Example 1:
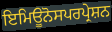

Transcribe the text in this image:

ਇਮਿਊਨੋਸਪਰਪ੍ਰੇਸ਼ਨ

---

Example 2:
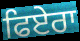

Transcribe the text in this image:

ਫਿਏਰਾ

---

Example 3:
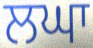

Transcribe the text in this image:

ਲਘਾ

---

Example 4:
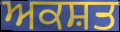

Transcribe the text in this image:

ਅਕਸ਼ਤ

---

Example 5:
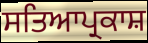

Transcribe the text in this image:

ਸਤਿਆਪ੍ਰਕਾਸ਼